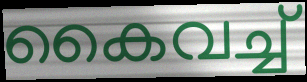
കൈവച്ച്